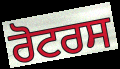
ਰੋਟਰਸ